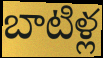
బాటిళ్ల